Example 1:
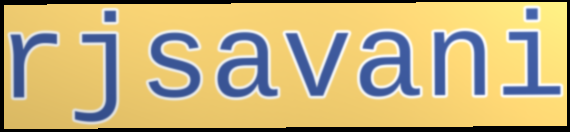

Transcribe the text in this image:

rjsavani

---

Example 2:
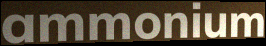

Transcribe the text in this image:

ammonium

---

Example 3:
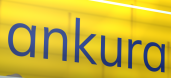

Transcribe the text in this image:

ankura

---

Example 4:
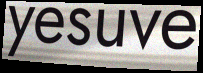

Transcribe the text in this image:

yesuve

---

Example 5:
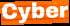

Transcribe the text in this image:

Cyber